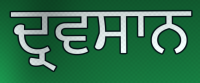
ਦ੍ਰਵਸਾਨ